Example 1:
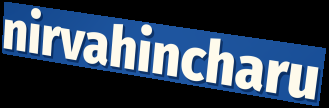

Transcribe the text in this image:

nirvahincharu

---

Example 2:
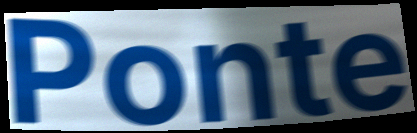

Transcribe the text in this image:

Ponte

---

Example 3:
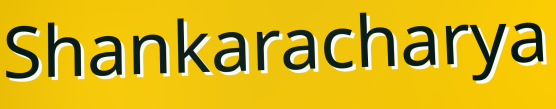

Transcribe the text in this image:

Shankaracharya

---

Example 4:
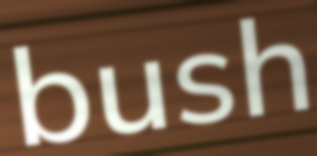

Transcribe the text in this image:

bush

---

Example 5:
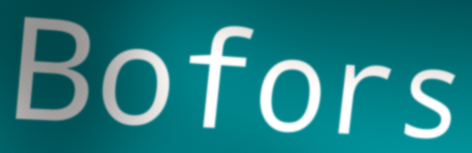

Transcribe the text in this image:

Bofors